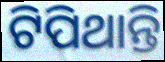
ଟିପିଥାନ୍ତି